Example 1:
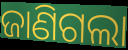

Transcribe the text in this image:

ଜାଣିଗଲା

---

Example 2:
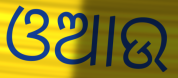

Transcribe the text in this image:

ଓଆଉ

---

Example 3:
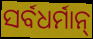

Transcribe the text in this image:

ସର୍ବଧର୍ମାନ୍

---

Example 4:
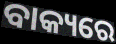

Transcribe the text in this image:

ବାକ୍ୟରେ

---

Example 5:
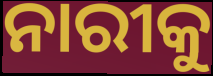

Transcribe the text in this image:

ନାରୀକୁ